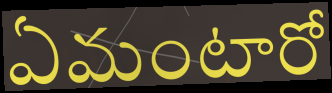
ఏమంటారో